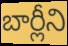
బార్లీని